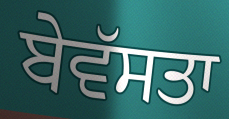
ਬੇਵੱਸਤਾ